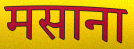
मसाना